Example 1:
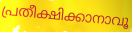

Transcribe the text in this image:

പ്രതീക്ഷിക്കാനാവൂ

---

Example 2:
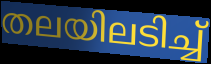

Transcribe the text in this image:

തലയിലടിച്ച്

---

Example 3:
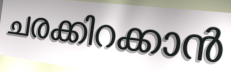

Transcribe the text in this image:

ചരക്കിറക്കാൻ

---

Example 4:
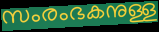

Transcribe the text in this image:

സംരംഭകനുള്ള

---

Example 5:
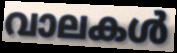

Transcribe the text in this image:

വാലകൾ